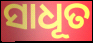
ସାଧୂତ